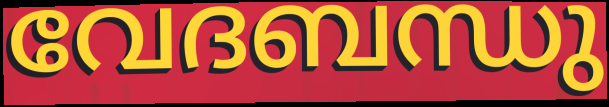
വേദബന്ധു